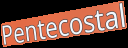
Pentecostal